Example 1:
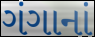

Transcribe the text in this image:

ગંગાનાં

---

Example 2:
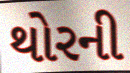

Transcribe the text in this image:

થોરની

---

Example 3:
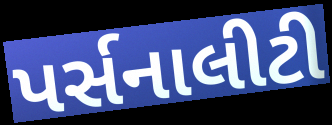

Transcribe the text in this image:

પર્સનાલીટી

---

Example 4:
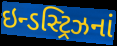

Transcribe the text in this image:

ઇન્ડસ્ટ્રિઝનાં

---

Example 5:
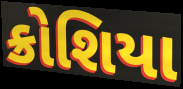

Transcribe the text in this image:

ક્રોશિયા